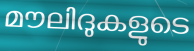
മൗലിദുകളുടെ